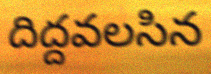
దిద్దవలసిన